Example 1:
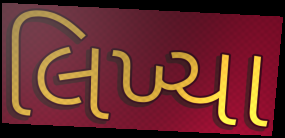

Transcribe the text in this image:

લિખ્યા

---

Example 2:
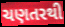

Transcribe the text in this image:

ચણતરથી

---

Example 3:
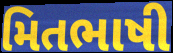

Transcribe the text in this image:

મિતભાષી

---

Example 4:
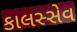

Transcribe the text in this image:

કાલસ્સેવ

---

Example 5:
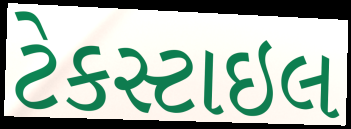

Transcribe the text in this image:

ટેકસ્ટાઇલ